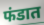
फंडात